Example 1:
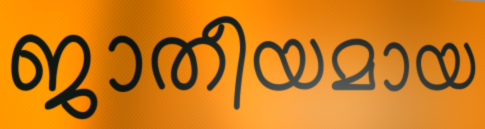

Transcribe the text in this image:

ജാതീയമായ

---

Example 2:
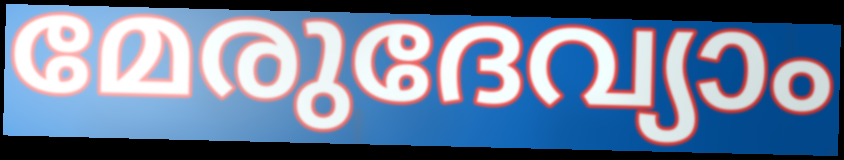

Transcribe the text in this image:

മേരുദേവ്യാം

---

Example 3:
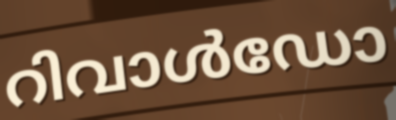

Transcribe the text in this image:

റിവാൾഡോ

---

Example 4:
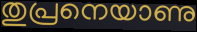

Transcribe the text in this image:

തുപ്രനെയാണു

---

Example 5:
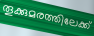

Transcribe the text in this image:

തൂക്കുമരത്തിലേക്ക്